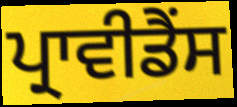
ਪ੍ਰਾਵੀਡੈਂਸ